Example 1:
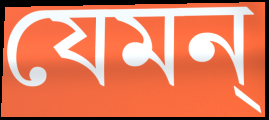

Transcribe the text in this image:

যেমন্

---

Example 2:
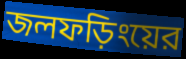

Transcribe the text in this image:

জলফড়িংয়ের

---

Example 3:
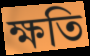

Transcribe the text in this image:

ক্ষতি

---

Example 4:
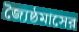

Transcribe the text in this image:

জ্যৈষ্ঠমাসের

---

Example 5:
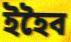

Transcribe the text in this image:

ইহৈব